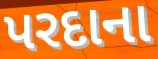
પરદાના